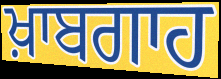
ਖ਼ਾਬਗਾਹ